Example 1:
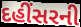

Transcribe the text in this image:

દહીંસરની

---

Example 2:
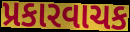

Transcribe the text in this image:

પ્રકારવાચક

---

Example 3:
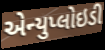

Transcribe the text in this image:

એન્યુપ્લોઇડી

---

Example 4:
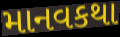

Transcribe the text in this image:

માનવકથા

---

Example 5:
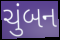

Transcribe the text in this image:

ચુંબન